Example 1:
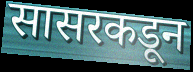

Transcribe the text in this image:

सासरकडून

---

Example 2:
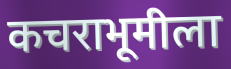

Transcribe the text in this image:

कचराभूमीला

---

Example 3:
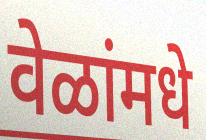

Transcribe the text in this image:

वेळांमधे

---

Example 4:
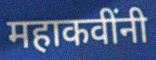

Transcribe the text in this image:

महाकवींनी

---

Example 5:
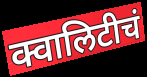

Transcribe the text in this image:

क्वालिटीचं